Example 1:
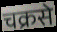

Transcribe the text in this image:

चक्रसे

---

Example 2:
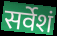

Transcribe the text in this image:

सर्वेशं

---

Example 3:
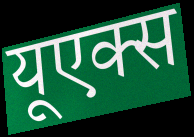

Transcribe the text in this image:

यूएक्स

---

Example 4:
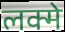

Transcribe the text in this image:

लक्मे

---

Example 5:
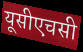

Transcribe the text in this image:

यूसीएचसी